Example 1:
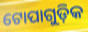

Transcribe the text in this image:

ଟୋପାଗୁଡ଼ିକ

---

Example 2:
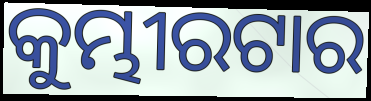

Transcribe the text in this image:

କୁମ୍ଭୀରଟାର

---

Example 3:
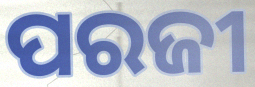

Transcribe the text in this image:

ପରଜୀ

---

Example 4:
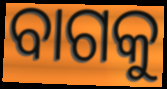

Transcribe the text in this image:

ବାଗକୁ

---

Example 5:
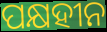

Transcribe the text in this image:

ପକ୍ଷହୀନ